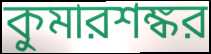
কুমারশঙ্কর